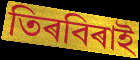
তিৰবিৰাই